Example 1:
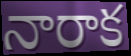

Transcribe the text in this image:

నారాక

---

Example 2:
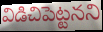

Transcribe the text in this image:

విడిచిపెట్టనని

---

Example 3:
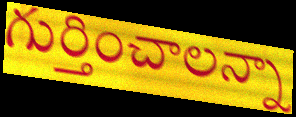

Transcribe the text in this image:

గుర్తించాలన్నా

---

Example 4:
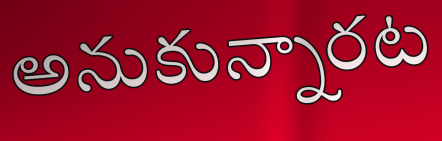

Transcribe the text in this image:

అనుకున్నారట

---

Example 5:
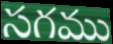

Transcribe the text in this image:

సగము